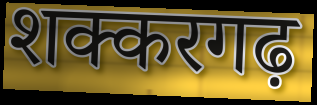
शक्करगढ़